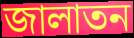
জালাতন